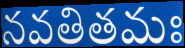
నవతితమః